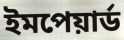
ইমপেয়াৰ্ড